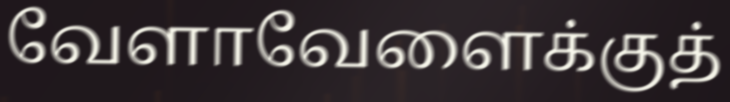
வேளாவேளைக்குத்